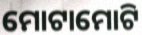
ମୋଟାମୋଟି